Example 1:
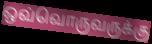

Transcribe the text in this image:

ஒவ்வொருவருக்கு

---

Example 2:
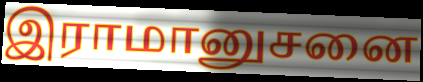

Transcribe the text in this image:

இராமானுசனை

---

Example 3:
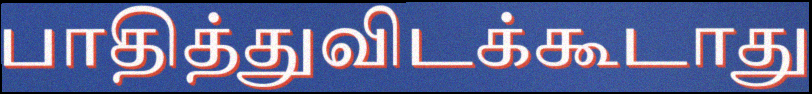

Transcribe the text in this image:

பாதித்துவிடக்கூடாது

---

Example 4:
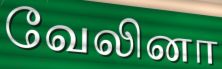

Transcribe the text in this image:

வேலினா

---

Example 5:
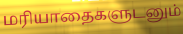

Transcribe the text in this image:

மரியாதைகளுடனும்